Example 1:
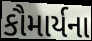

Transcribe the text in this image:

કૌમાર્યના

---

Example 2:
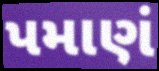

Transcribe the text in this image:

પમાણં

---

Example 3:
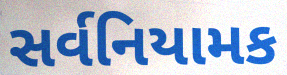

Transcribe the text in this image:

સર્વનિયામક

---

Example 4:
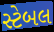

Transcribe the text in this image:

સ્ટેબલ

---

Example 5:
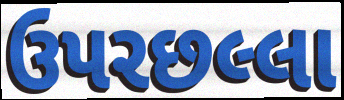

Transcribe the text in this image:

ઉપરછલ્લા